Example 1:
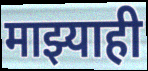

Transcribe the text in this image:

माझ्याही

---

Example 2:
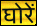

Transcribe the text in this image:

घोरें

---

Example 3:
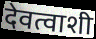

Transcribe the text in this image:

देवत्वाशी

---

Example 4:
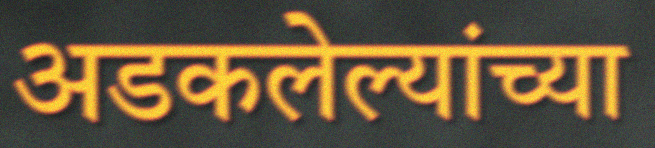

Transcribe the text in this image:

अडकलेल्यांच्या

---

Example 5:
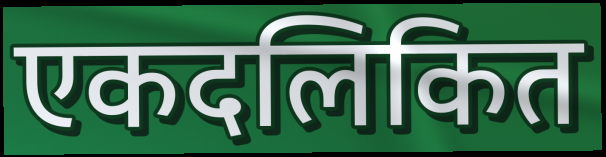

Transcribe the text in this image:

एकदलिकित